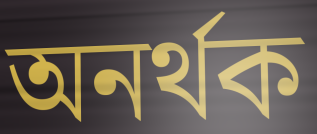
অনৰ্থক